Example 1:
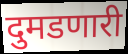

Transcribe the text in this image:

दुमडणारी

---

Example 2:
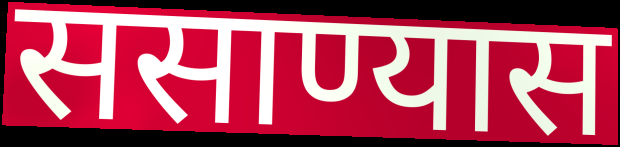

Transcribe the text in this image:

ससाण्यास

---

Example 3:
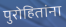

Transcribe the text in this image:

पुरोहितांना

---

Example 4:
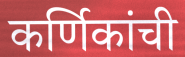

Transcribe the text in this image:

कर्णिकांची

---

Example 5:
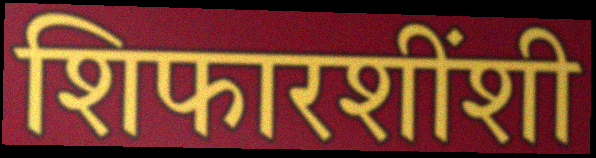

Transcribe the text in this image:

शिफारशींशी